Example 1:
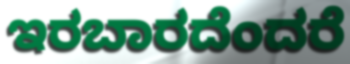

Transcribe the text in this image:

ಇರಬಾರದೆಂದರೆ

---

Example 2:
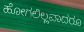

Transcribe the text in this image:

ಹೋಗಲಿಲ್ಲವಾದರೂ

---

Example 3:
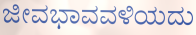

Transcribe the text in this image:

ಜೀವಭಾವವಳಿಯದು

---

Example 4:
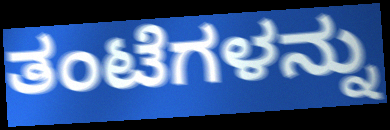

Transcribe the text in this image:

ತಂಟೆಗಳನ್ನು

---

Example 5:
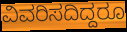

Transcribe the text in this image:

ವಿವರಿಸದಿದ್ದರೂ